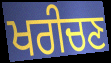
ਖਰੀਚਣ